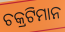
ଚକ୍ରଟିମାନ